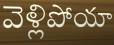
వెళ్లిపోయా